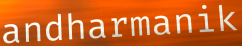
andharmanik